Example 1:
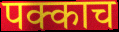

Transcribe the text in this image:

पक्काच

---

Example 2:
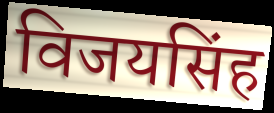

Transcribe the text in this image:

विजयसिंह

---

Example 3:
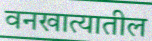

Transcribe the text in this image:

वनखात्यातील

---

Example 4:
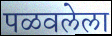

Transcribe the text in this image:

पळवलेला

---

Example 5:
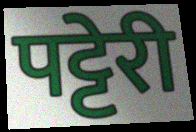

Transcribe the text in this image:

पट्टेरी